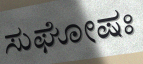
ಸುಘೋಷಃ